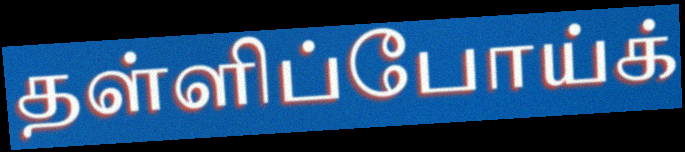
தள்ளிப்போய்க்